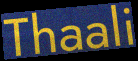
Thaali